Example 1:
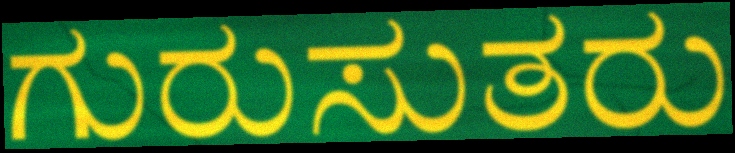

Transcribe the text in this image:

ಗುರುಸುತರು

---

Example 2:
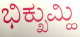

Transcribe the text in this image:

ಭಿಕ್ಖುಮ್ಹಿ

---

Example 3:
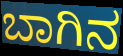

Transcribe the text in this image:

ಬಾಗಿನ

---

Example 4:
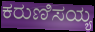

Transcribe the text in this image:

ಕರುಣಿಸಯ್ಯ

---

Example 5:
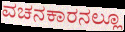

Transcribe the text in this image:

ವಚನಕಾರನಲ್ಲೂ